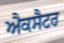
ਐਕਸੈਟਰ